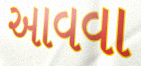
આવવા